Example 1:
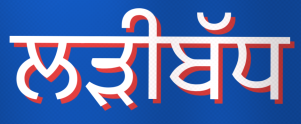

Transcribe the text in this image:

ਲੜੀਬੱਧ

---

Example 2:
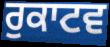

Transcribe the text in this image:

ਰੁਕਾਟਵ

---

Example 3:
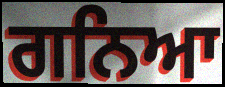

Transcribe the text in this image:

ਗਨਿਆ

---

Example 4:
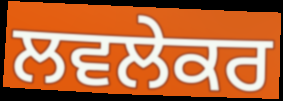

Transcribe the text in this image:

ਲਵਲੇਕਰ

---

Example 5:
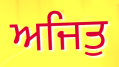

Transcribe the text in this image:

ਅਜਿਤੁ